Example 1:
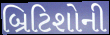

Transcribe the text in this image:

બ્રિટિશોની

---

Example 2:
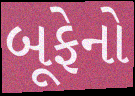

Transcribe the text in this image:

બૂફેનો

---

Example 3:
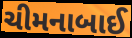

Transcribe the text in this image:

ચીમનાબાઈ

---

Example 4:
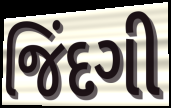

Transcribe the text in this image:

જિંદગી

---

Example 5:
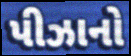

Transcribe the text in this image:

પીઝાનો